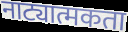
नाट्यात्मकता